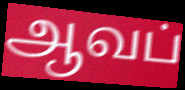
ஆவப்